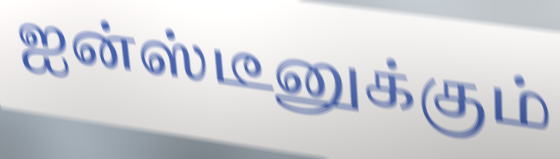
ஐன்ஸ்டீனுக்கும்